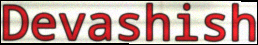
Devashish